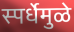
स्पर्धेमुळे